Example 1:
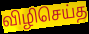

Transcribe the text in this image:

விழிசெய்த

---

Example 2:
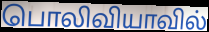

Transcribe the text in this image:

பொலிவியாவில்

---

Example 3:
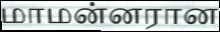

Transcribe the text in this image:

மாமன்னரான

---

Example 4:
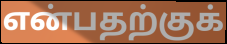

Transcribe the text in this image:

என்பதற்குக்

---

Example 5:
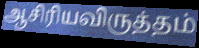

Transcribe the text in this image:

ஆசிரியவிருத்தம்